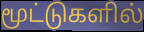
மூட்டுகளில்